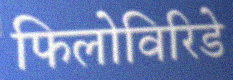
फिलोविरिडे